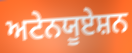
ਅਟੇਨਯੂਏਸ਼ਨ